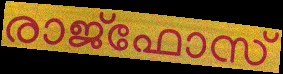
രാജ്ഫോസ്